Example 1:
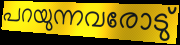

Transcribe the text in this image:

പറയുന്നവരോടു്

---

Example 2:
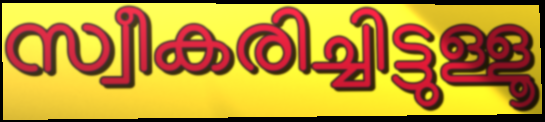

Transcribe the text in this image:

സ്വീകരിച്ചിട്ടുള്ളൂ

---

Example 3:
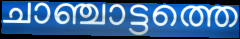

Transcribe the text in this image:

ചാഞ്ചാട്ടത്തെ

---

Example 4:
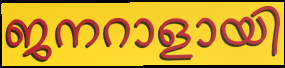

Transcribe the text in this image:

ജനറാളായി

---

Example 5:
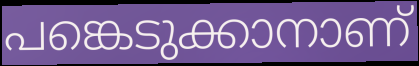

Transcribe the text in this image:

പങ്കെടുക്കാനാണ്